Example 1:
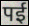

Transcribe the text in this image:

पई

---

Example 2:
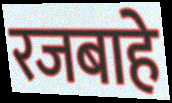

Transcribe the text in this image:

रजबाहे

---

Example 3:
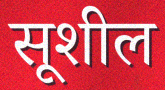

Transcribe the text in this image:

सूशील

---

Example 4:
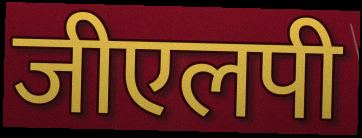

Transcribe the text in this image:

जीएलपी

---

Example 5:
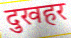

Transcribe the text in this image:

दुखहर